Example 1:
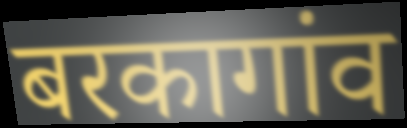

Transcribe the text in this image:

बरकागांव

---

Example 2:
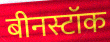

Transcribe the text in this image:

बीनस्टॉक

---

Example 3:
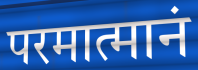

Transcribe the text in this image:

परमात्मानं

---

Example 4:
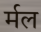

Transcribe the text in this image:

र्मल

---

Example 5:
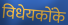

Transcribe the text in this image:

विधेयकोंके